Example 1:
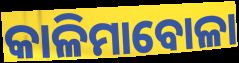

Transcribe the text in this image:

କାଳିମାବୋଳା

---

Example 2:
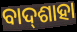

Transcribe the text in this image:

ବାଦ୍‌ଶାହା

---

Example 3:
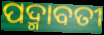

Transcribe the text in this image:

ପଦ୍ମାବତୀ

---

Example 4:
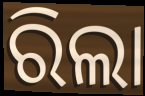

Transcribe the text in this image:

ରିଲା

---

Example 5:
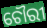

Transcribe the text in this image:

ଚୌରୀ